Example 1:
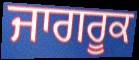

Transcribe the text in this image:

ਜਾਗਰੂਕ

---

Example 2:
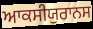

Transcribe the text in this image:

ਆਕਸੀਯੁਰਾਨਸ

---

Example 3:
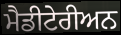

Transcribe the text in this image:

ਮੈਡੀਟੇਰੀਅਨ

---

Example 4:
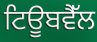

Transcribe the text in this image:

ਟਿਊਬਵੈੱਲ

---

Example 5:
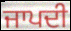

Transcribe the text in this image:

ਜਾਪਦੀ